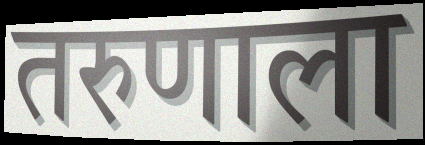
तरुणाला